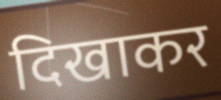
दिखाकर